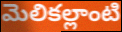
మెలికల్లాంటి